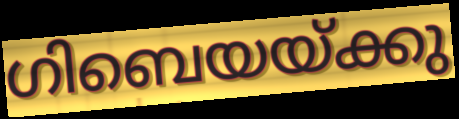
ഗിബെയയ്ക്കു